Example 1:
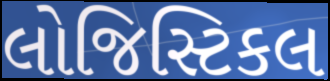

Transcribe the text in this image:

લોજિસ્ટિકલ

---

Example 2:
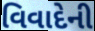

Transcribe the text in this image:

વિવાદેની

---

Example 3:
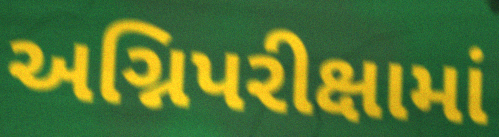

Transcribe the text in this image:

અગ્નિપરીક્ષામાં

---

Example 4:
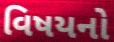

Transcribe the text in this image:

વિષયનો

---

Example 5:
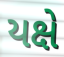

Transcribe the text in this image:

યક્ષે